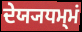
ਦੇਯ੍ਯਧਮ੍ਮਂ